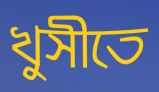
খুসীতে